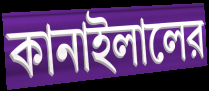
কানাইলালের